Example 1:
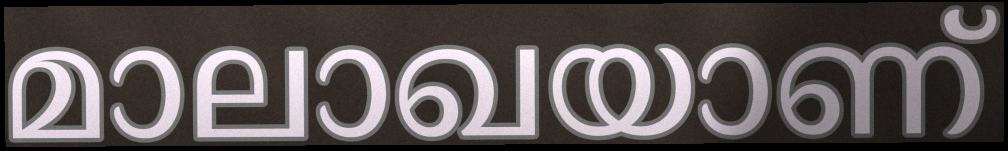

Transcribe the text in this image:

മാലാഖയാണ്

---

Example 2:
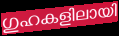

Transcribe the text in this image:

ഗുഹകളിലായി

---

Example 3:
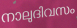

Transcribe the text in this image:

നാലുദിവസം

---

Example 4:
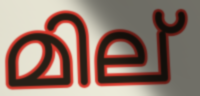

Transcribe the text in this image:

മില്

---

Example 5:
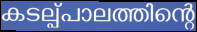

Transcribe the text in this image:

കടല്പ്പാലത്തിന്റെ